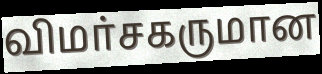
விமர்சகருமான